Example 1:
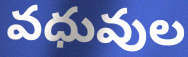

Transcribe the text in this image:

వధువుల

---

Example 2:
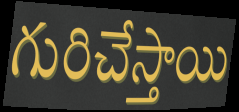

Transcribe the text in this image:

గురిచేస్తాయి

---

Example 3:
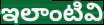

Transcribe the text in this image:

ఇలాంటివి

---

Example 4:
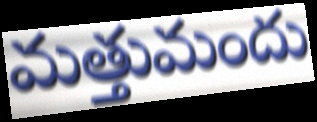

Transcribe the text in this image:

మత్తుమందు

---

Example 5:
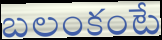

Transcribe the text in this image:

బలంకంటే